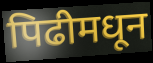
पिढीमधून